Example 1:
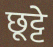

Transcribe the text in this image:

छूट्टे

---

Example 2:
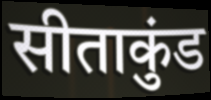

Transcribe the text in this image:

सीताकुंड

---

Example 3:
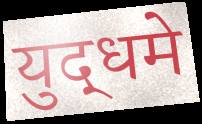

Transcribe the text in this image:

युद्धमे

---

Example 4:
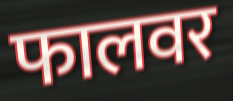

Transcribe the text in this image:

फालवर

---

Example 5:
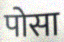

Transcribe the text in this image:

पोसा